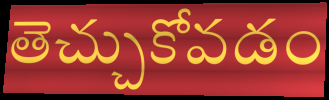
తెచ్చుకోవడం